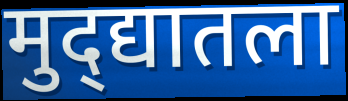
मुद्द्यातला